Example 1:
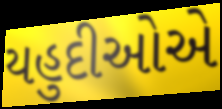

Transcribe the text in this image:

યહુદીઓએ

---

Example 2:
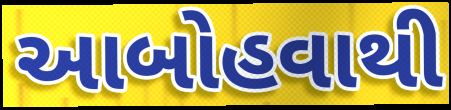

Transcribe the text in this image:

આબોહવાથી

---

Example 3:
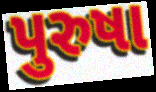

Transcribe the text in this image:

પુરુષા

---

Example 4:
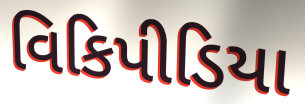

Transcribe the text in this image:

વિકિપીડિયા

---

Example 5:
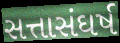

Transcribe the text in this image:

સત્તાસંઘર્ષ